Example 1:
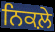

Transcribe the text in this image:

ਨਿਕਲ਼ੇ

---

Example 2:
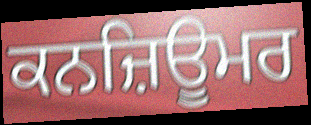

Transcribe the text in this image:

ਕਨਜ਼ਿਊਮਰ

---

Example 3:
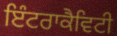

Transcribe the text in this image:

ਇੰਟਰਾਕੈਵਿਟੀ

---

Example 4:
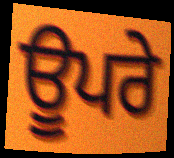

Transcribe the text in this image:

ਊਪਰੇ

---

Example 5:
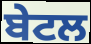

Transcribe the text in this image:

ਬੇਟਲ